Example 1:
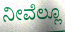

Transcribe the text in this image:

ನೀವೆಲ್ಲೂ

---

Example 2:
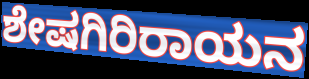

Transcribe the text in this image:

ಶೇಷಗಿರಿರಾಯನ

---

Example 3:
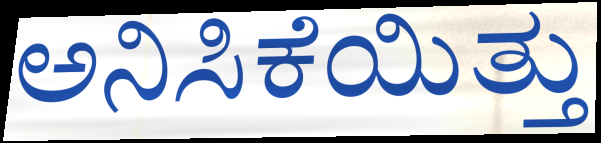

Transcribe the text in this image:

ಅನಿಸಿಕೆಯಿತ್ತು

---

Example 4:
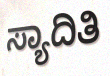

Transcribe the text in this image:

ಸ್ಯಾದಿತಿ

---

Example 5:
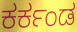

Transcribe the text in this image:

ಕರ್ಕಂಡ